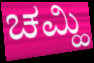
ಚಮ್ಹಿ